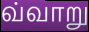
வ்வாறு